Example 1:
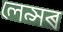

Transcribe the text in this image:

লেন্সৰ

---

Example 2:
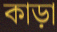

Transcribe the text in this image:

কাড়া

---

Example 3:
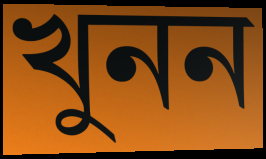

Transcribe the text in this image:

খুনন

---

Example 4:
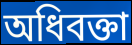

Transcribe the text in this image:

অধিবক্তা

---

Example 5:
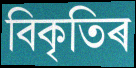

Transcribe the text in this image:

বিকৃতিৰ